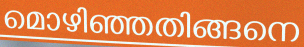
മൊഴിഞ്ഞതിങ്ങനെ